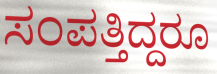
ಸಂಪತ್ತಿದ್ದರೂ